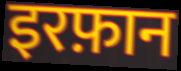
इरफ़ान